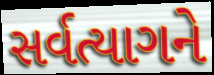
સર્વત્યાગને